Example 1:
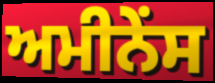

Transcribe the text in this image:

ਅਮੀਨੇਂਸ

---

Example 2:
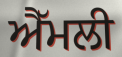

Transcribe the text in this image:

ਐੱਮਲੀ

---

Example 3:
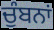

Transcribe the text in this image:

ਚੁੰਬਨਾਂ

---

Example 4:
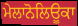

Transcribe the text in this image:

ਮੇਲਾਨੋਲਿਊਕਾ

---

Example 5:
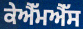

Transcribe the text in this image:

ਕੇਐੱਮਐੱਸ